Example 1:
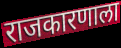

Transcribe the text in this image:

राजकारणाला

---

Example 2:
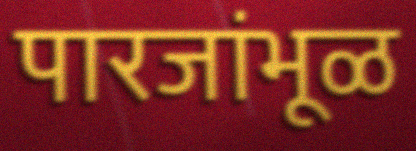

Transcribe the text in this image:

पारजांभूळ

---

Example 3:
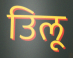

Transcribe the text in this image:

उिलू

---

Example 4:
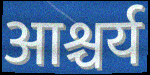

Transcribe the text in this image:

आश्चर्य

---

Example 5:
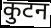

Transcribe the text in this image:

कुटन